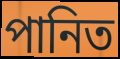
পানিত